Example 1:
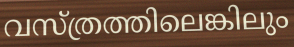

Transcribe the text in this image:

വസ്ത്രത്തിലെങ്കിലും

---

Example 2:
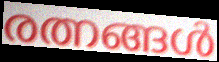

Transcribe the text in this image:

രത്നങ്ങൾ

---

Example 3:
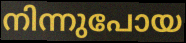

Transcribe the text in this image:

നിന്നുപോയ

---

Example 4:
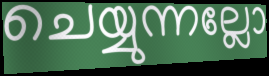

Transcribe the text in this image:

ചെയ്യുന്നല്ലോ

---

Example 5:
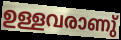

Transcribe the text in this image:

ഉള്ളവരാണു്